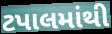
ટપાલમાંથી